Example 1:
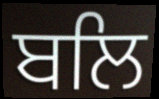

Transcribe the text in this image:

ਬਲਿ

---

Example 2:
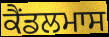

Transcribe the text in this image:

ਕੈਂਡਲਮਾਸ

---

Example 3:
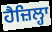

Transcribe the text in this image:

ਹੈਜ਼ਿਲ੍ਹਾ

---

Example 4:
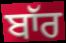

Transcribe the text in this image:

ਬਾੱਰ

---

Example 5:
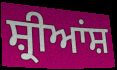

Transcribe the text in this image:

ਸ਼੍ਰੀਆਂਸ਼